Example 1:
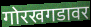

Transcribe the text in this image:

गोरखगडावर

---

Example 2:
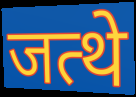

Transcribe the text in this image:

जत्थे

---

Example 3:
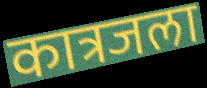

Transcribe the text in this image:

कात्रजला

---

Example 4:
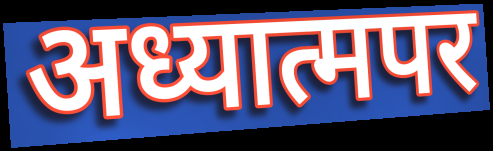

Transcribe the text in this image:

अध्यात्मपर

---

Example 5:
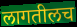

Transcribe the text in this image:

लागतीलच